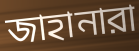
জাহানারা